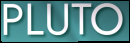
PLUTO